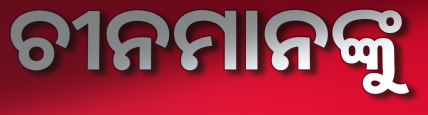
ଚୀନମାନଙ୍କୁ